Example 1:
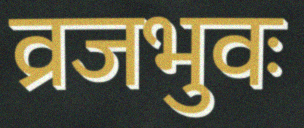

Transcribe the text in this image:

व्रजभुवः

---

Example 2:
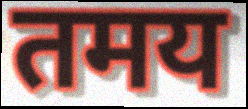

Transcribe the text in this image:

तमय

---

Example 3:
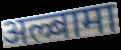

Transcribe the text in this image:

अल्बामा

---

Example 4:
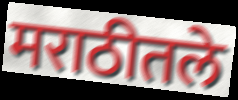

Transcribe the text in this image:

मराठीतले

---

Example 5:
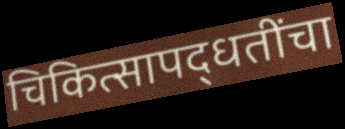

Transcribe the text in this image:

चिकित्सापद्धतींचा